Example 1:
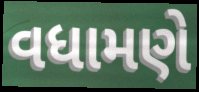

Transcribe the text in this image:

વધામણે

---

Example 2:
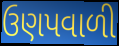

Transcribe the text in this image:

ઉણપવાળી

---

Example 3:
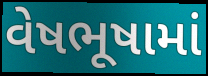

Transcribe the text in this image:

વેષભૂષામાં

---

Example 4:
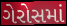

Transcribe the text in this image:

ગેરોસમાં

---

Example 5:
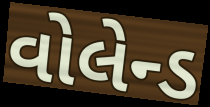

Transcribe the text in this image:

વોલેન્ડ